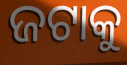
ଜଟାକୁ